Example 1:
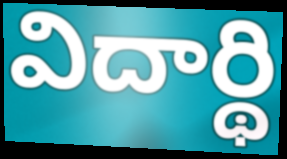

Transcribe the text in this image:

విదార్థి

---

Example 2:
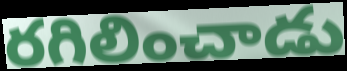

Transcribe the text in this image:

రగిలించాడు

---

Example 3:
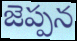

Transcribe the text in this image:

జెప్పన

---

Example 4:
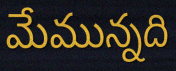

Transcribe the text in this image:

మేమున్నది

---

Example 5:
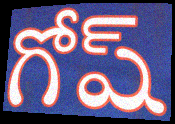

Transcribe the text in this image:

గోష్